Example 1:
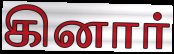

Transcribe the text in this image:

கினார்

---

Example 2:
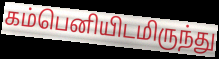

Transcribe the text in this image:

கம்பெனியிடமிருந்து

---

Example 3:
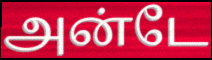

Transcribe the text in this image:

அன்டே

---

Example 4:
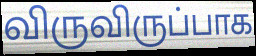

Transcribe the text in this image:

விருவிருப்பாக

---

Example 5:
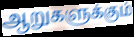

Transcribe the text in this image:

ஆறுகளுக்கும்